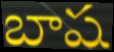
బాష